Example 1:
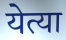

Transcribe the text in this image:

येत्या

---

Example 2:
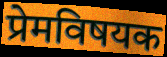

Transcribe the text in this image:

प्रेमविषयक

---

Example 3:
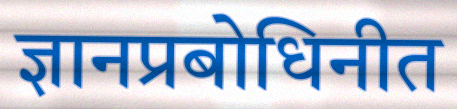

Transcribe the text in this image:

ज्ञानप्रबोधिनीत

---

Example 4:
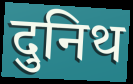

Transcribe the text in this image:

दुनिथ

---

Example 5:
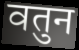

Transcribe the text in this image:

वतुन